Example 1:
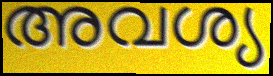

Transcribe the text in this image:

അവശ്യ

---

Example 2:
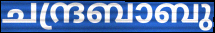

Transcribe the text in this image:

ചന്ദ്രബാബു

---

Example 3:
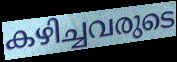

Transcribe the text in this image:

കഴിച്ചവരുടെ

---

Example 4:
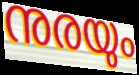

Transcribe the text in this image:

നുരയും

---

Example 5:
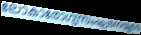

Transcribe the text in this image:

ലോകാരോഗ്യസംഘടനയുടെ